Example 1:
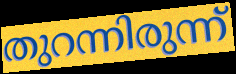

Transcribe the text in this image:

തുറന്നിരുന്ന്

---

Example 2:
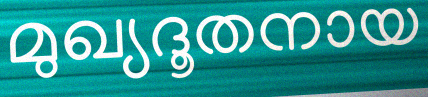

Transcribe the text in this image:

മുഖ്യദൂതനായ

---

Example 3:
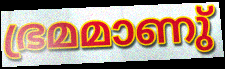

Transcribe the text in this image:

ഭ്രമമാണു്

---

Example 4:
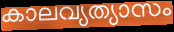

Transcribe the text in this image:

കാലവ്യത്യാസം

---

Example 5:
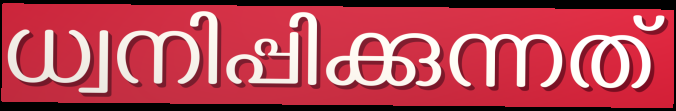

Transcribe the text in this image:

ധ്വനിപ്പിക്കുന്നത്